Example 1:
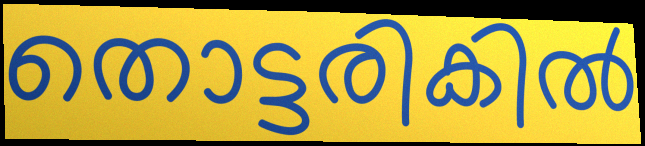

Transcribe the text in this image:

തൊട്ടരികിൽ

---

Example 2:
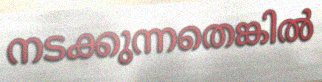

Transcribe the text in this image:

നടക്കുന്നതെങ്കിൽ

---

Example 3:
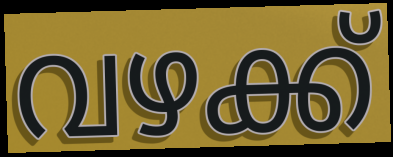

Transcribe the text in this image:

വഴക്ക്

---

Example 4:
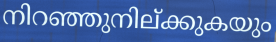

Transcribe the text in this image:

നിറഞ്ഞുനില്ക്കുകയും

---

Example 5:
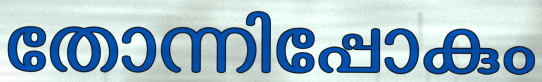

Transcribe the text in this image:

തോന്നിപ്പോകും